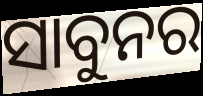
ସାବୁନର